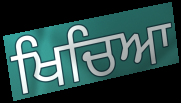
ਖਿਚਿਆ